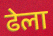
ढेला